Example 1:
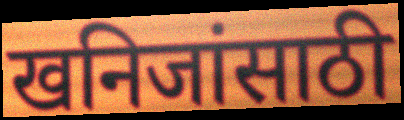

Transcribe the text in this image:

खनिजांसाठी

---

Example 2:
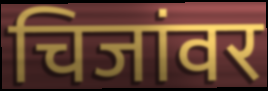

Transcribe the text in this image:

चिजांवर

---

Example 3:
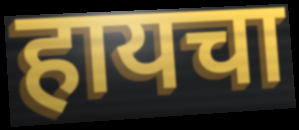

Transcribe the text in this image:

हायचा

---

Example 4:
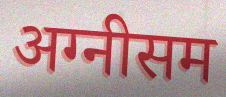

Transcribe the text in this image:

अग्नीसम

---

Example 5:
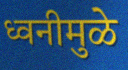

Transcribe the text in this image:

ध्वनीमुळे